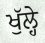
ਖੁੱਲ੍ਹੇ